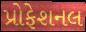
પ્રોફેશનલ